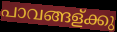
പാവങ്ങള്ക്കു